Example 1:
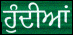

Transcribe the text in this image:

ਹੁੰਦੀਆਂ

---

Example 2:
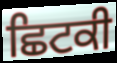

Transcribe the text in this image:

ਛਿਟਕੀ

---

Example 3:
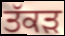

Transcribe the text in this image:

ਤੱਕੜ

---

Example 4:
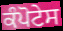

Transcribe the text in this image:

ਕੰਪੋਟੇਸ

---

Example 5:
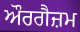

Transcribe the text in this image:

ਔਰਗੈਜ਼ਮ